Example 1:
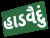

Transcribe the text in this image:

હાડવૈદું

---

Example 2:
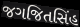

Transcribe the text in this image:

જગજિતસિંહ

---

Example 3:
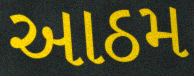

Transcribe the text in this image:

આઠમ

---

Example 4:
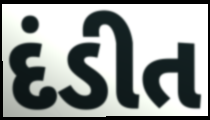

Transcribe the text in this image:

દંડીત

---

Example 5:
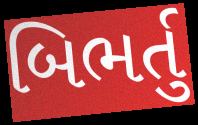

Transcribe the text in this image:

બિભર્તુ